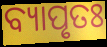
ବ୍ୟାପୃତଃ